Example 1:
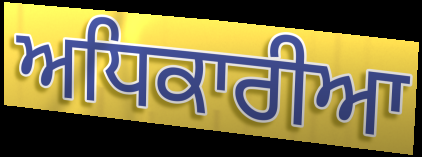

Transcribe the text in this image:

ਅਧਿਕਾਰੀਆ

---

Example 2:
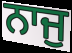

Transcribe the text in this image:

ਨਾਜੁ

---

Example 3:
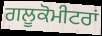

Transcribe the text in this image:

ਗਲੂਕੋਮੀਟਰਾਂ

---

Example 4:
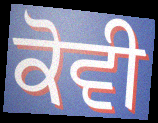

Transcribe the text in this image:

ਕੋਵੀ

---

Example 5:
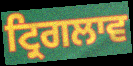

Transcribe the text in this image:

ਟ੍ਰਿਗਲਾਵ